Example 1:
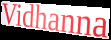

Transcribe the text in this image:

Vidhanna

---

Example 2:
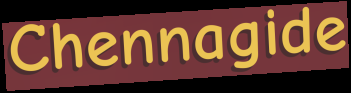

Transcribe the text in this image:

Chennagide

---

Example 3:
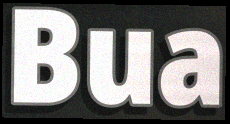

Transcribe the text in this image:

Bua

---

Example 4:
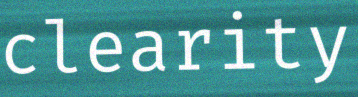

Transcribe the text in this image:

clearity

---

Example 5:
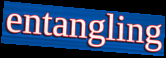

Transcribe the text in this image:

entangling